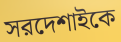
সরদেশাইকে